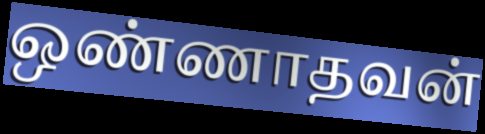
ஒண்ணாதவன்